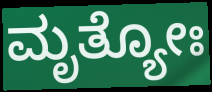
ಮೃತ್ಯೋಃ